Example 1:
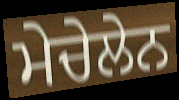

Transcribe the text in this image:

ਮੇਚੇਲੇਨ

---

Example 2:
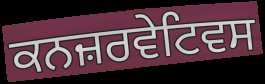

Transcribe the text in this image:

ਕਨਜ਼ਰਵੇਟਿਵਸ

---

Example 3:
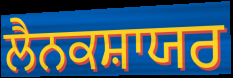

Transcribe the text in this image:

ਲੈਨਕਸ਼ਾਯਰ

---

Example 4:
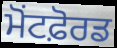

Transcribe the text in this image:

ਮੋਂਟਫ਼ੋਰਡ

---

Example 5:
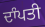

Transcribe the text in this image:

ਦਾੰਪਤੀ